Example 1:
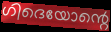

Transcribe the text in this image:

ഗിദെയോന്റെ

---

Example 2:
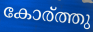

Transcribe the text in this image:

കോര്ത്തു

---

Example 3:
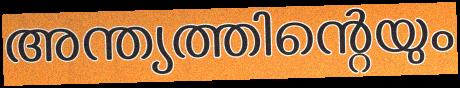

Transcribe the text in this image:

അന്ത്യത്തിന്റെയും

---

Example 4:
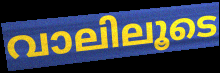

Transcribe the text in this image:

വാലിലൂടെ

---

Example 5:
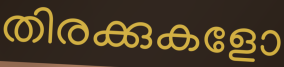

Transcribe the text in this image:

തിരക്കുകളോ